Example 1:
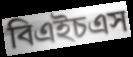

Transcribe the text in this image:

বিএইচএস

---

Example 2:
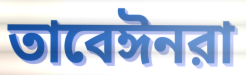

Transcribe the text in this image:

তাবেঈনরা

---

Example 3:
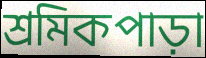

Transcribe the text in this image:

শ্রমিকপাড়া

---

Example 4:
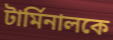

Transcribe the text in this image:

টার্মিনালকে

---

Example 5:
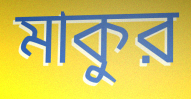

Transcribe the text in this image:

মাকুর